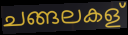
ചങ്ങലകള്